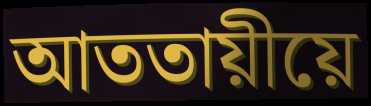
আততায়ীয়ে